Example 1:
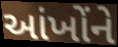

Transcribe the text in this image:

આંખોંને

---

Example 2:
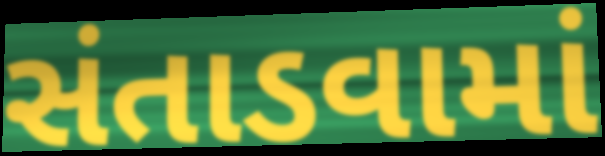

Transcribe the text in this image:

સંતાડવામાં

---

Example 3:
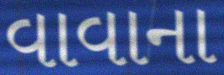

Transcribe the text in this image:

વાવાના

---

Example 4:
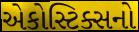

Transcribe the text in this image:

એકોસ્ટિક્સનો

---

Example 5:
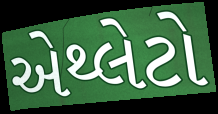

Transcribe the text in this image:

એથ્લેટો